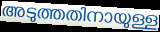
അടുത്തതിനായുള്ള